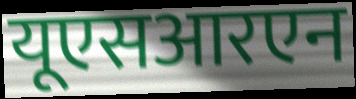
यूएसआरएन